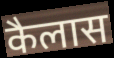
कैलास